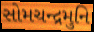
સોમચન્દ્રમુનિ